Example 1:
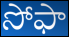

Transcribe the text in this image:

సోఫా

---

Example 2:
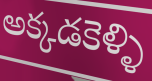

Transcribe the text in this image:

అక్కడకెళ్ళి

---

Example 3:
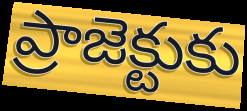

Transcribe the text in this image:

ప్రాజెక్టుకు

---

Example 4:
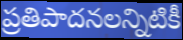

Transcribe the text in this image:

ప్రతిపాదనలన్నిటికీ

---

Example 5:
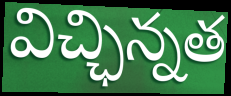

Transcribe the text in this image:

విచ్ఛిన్నత